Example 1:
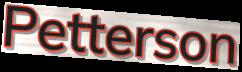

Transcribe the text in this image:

Petterson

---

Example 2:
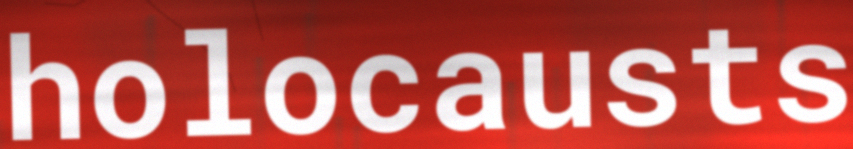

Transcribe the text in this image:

holocausts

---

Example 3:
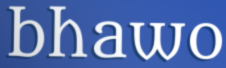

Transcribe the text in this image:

bhawo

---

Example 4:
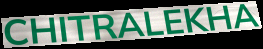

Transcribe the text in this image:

CHITRALEKHA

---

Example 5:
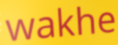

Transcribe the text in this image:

wakhe